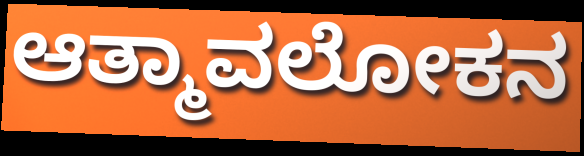
ಆತ್ಮಾವಲೋಕನ